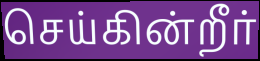
செய்கின்றீர்